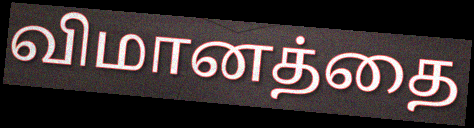
விமானத்தை